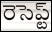
రెసెప్ట్